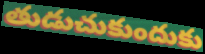
తుడుచుకుందుకు